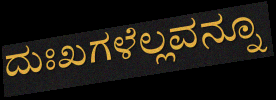
ದುಃಖಗಳೆಲ್ಲವನ್ನೂ